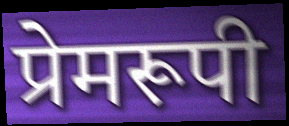
प्रेमरूपी